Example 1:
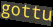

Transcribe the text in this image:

gottu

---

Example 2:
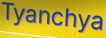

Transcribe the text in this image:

Tyanchya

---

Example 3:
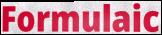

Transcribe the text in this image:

Formulaic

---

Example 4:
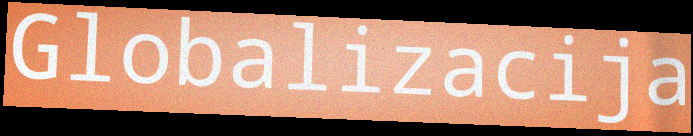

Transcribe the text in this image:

Globalizacija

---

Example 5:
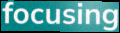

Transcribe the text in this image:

focusing